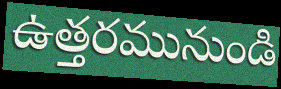
ఉత్తరమునుండి